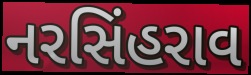
નરસિંહરાવ